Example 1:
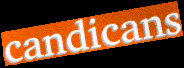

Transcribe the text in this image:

candicans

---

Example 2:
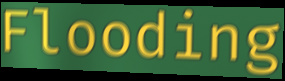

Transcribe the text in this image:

Flooding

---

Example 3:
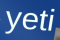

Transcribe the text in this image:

yeti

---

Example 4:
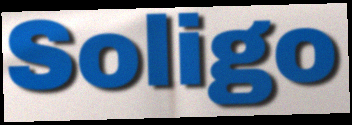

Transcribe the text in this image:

Soligo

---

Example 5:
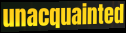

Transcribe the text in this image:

unacquainted